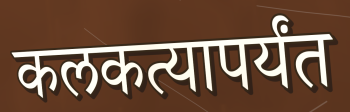
कलकत्यापर्यंत